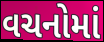
વચનોમાં